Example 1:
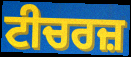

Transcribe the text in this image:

ਟੀਚਰਜ਼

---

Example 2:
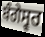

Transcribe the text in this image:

ਬੰਗੇਸ੍ਵਰ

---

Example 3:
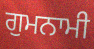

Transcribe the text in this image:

ਗੁਮਨਾਮੀ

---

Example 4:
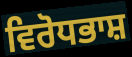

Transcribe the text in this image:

ਵਿਰੋਧਭਾਸ਼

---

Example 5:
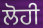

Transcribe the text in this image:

ਲੋਹੀ